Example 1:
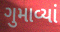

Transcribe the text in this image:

ગુમાવ્યાં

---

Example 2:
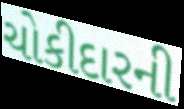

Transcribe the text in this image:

ચોકીદારની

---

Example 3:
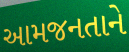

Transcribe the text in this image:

આમજનતાને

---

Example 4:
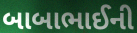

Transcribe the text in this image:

બાબાભાઈની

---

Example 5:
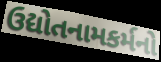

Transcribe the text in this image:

ઉદ્યોતનામકર્મનો